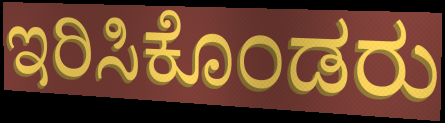
ಇರಿಸಿಕೊಂಡರು